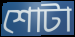
শোটা